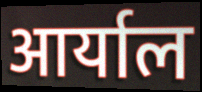
आर्याल